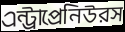
এন্ট্রাপ্রেনিউরস